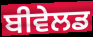
ਬੀਵੇਲਡ